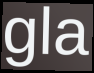
gla